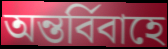
অন্তর্বিবাহে